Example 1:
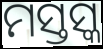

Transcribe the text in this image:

ମସ୍ତସ୍କ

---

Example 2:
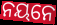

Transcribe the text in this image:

ନୟନେ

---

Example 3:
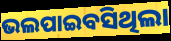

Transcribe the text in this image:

ଭଲପାଇବସିଥିଲା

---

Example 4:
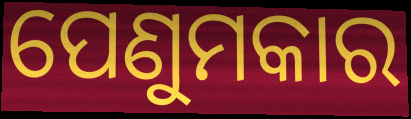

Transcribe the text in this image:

ପେଣୁମକାର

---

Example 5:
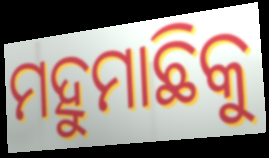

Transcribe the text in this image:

ମହୁମାଛିକୁ